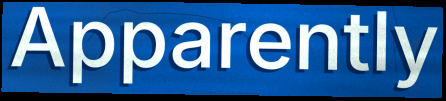
Apparently